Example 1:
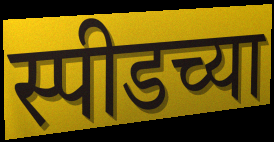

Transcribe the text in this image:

स्पीडच्या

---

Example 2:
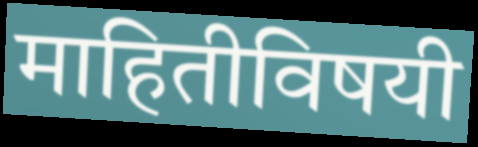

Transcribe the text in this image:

माहितीविषयी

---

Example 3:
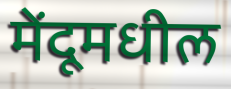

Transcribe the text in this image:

मेंदूमधील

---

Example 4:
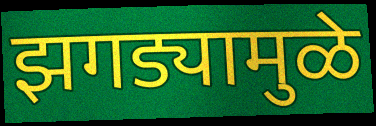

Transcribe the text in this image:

झगड्यामुळे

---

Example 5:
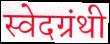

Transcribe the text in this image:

स्वेदग्रंथी